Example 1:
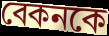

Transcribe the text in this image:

বেকনকে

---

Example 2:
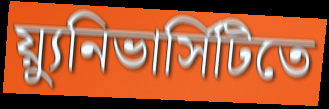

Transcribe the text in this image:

য়্যুনিভার্সিটিতে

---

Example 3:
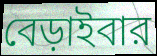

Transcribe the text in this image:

বেড়াইবার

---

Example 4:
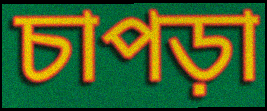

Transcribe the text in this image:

চাপড়া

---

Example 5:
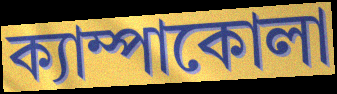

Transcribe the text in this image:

ক্যাম্পাকোলা